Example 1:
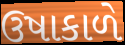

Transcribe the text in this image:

ઉષાકાળે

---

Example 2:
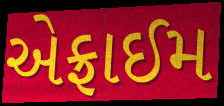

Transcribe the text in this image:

એફ્રાઈમ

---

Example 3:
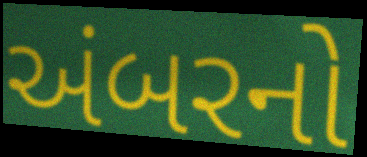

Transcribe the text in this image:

અંબરનો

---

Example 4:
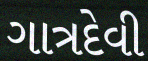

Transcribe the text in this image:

ગાત્રદેવી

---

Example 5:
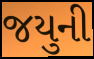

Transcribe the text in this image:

જયુની